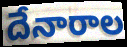
దేనారాల